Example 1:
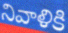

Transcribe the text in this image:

నివాళికి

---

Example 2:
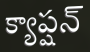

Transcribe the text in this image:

క్యాప్షన్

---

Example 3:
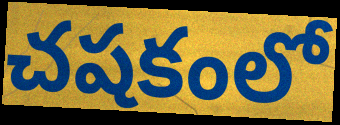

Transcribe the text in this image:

చషకంలో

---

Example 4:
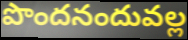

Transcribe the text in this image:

పొందనందువల్ల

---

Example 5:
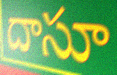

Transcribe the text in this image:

దాసూ